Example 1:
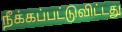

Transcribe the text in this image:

நீக்கப்பட்டுவிட்டது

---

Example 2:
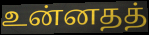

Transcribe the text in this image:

உன்னதத்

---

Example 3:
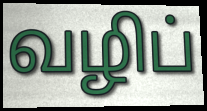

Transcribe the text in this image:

வழிப்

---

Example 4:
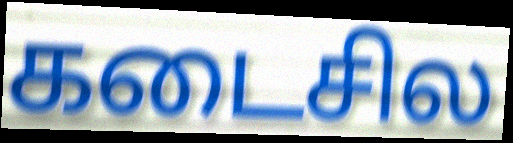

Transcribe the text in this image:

கடைசில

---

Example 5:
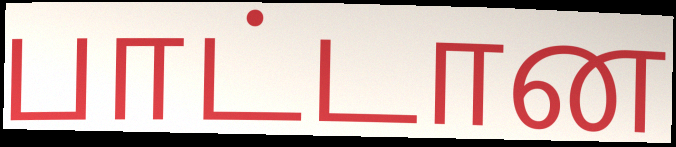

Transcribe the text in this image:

பாட்டான